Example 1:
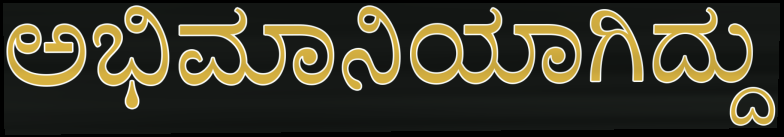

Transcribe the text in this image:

ಅಭಿಮಾನಿಯಾಗಿದ್ದು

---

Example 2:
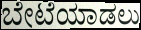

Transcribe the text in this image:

ಬೇಟೆಯಾಡಲು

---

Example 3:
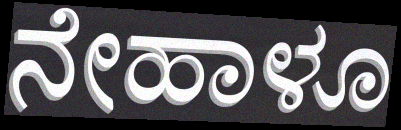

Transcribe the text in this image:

ನೇಹಾಳೂ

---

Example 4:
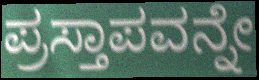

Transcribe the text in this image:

ಪ್ರಸ್ತಾಪವನ್ನೇ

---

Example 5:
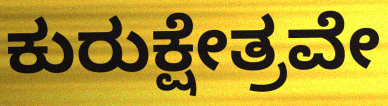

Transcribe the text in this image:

ಕುರುಕ್ಷೇತ್ರವೇ